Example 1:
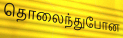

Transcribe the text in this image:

தொலைந்துபோன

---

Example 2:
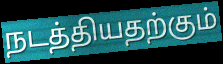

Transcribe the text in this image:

நடத்தியதற்கும்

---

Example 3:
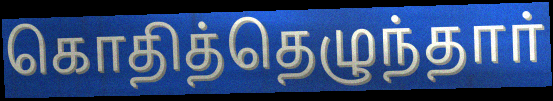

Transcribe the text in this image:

கொதித்தெழுந்தார்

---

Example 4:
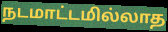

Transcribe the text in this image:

நடமாட்டமில்லாத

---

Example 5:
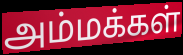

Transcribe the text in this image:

அம்மக்கள்